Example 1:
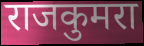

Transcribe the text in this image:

राजकुमरा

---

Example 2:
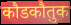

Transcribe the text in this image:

कौडकौतुक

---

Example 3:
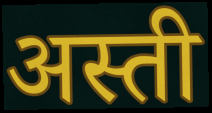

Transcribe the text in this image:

अस्ती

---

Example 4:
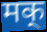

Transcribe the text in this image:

मक्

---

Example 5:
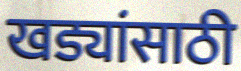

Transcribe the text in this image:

खड्यांसाठी